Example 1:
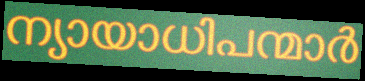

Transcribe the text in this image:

ന്യായാധിപന്മാർ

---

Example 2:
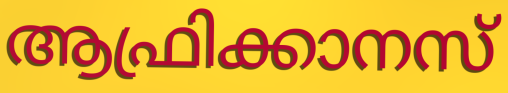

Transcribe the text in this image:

ആഫ്രിക്കാനസ്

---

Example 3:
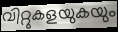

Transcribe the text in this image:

വിറ്റുകളയുകയും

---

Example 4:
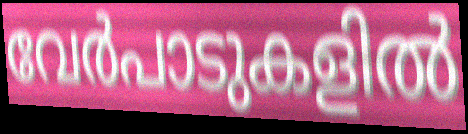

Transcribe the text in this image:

വേർപാടുകളിൽ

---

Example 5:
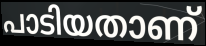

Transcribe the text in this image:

പാടിയതാണ്